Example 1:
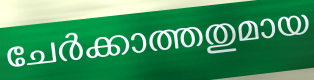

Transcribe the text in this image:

ചേർക്കാത്തതുമായ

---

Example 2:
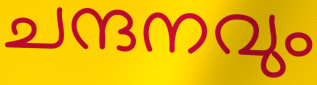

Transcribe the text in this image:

ചന്ദനവും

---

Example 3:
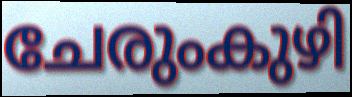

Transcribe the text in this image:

ചേരുംകുഴി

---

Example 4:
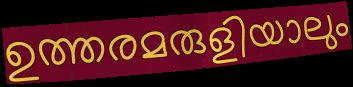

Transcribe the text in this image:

ഉത്തരമരുളിയാലും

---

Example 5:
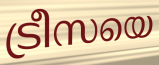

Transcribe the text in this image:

ട്രീസയെ